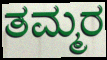
ತಮ್ಮರ